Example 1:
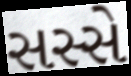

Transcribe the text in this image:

સસ્સે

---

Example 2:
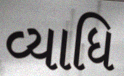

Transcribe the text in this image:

વ્યાધિ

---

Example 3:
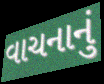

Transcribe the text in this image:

વાચનાનું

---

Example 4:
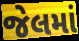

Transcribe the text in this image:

જેલમાં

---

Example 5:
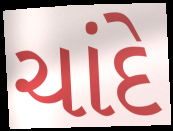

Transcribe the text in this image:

ચાંદે